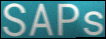
SAPs